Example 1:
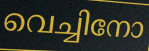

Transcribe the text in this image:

വെച്ചിനോ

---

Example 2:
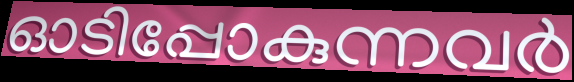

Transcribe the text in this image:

ഓടിപ്പോകുന്നവർ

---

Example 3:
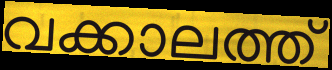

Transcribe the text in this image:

വക്കാലത്ത്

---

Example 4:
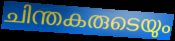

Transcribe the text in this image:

ചിന്തകരുടെയും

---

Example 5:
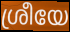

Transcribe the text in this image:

ശ്രീയേ